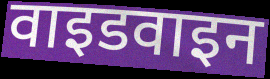
वाइडवाइन